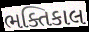
ભક્તિકાલ